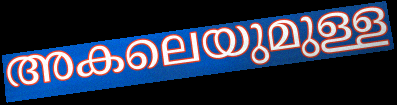
അകലെയുമുള്ള